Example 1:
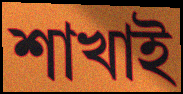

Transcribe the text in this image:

শাখাই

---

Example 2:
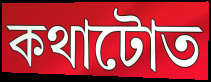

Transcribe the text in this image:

কথাটোত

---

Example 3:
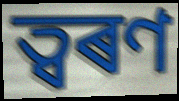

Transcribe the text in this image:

ত্বৰণ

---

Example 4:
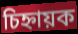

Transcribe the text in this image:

চিহ্নায়ক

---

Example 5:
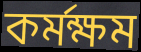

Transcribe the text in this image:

কৰ্মক্ষম